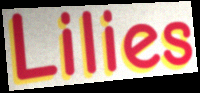
Lilies